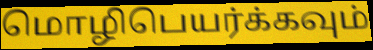
மொழிபெயர்க்கவும்